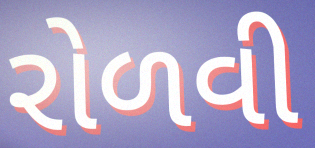
રોળવી